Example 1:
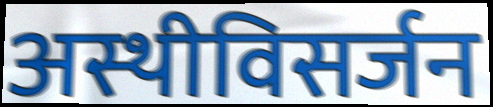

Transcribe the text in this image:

अस्थीविसर्जन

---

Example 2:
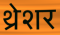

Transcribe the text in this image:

थ्रेशर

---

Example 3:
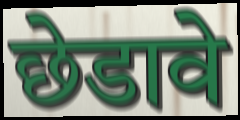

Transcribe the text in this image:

छेडावे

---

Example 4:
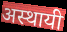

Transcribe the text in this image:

अस्थायी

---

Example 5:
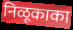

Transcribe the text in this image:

निळूकाका